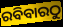
ରବିବାରଠୁ